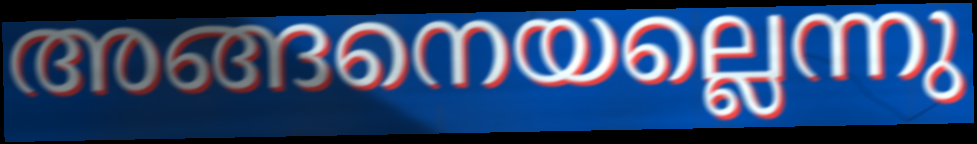
അങ്ങനെയല്ലെന്നു